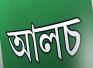
আলচ